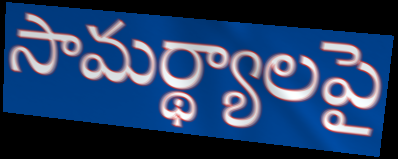
సామర్థ్యాలపై